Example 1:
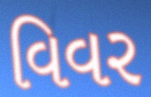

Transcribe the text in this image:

વિવર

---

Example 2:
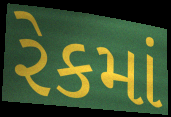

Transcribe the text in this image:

રેકમાં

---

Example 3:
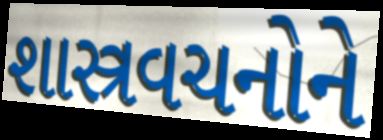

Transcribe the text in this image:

શાસ્ત્રવચનોને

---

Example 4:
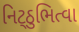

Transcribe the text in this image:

નિટ્ઠુભિત્વા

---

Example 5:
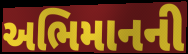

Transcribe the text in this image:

અભિમાનની